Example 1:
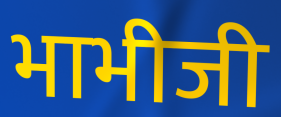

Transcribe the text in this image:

भाभीजी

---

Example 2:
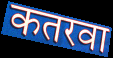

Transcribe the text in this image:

कतरवा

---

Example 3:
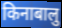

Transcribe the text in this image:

किनाबालु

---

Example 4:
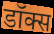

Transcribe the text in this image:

डॉक्स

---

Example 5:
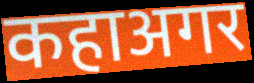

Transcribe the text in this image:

कहाअगर